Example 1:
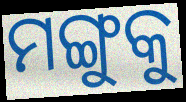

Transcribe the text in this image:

ମଙ୍ଗୁକୁ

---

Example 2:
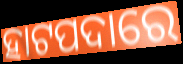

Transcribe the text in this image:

ହାଟପଦାରେ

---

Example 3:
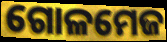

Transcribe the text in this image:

ଗୋଳମେଜ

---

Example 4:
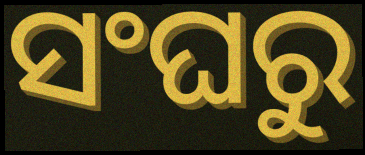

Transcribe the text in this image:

ସଂଘରୁ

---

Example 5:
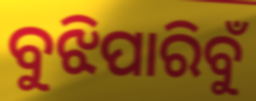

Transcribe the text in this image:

ବୁଝିପାରିବୁଁ